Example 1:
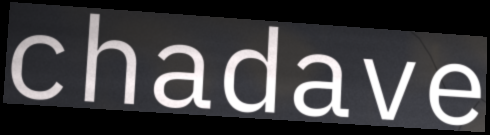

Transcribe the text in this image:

chadave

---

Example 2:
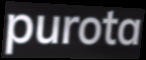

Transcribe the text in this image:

purota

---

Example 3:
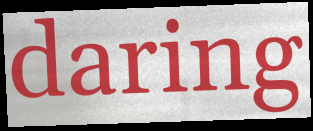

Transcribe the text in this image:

daring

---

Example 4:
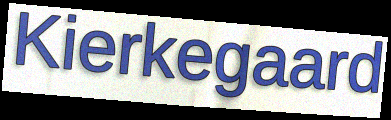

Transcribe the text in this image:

Kierkegaard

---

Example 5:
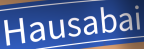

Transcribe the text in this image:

Hausabai